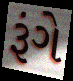
રૂંગે